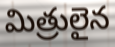
మిత్రులైన